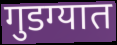
गुडग्यात